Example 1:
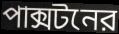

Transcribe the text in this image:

পাক্সটনের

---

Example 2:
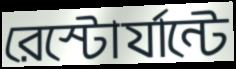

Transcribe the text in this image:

রেস্টোর্যান্টে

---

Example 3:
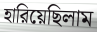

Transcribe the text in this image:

হারিয়েছিলাম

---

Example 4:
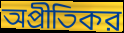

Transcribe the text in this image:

অপ্রীতিকর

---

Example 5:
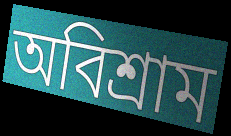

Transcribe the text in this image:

অবিশ্রাম